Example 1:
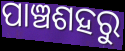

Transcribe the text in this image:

ପାଞ୍ଚଶହରୁ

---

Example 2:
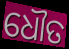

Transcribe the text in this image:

ଧୌତ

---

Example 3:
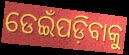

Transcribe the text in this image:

ଡେଇଁପଡ଼ିବାକୁ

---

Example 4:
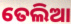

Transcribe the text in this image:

ତେଲିଆ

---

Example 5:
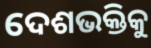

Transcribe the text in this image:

ଦେଶଭକ୍ତିକୁ